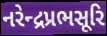
નરેન્દ્રપ્રભસૂરિ